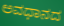
ಅವಧಾನದ